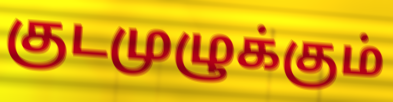
குடமுழுக்கும்